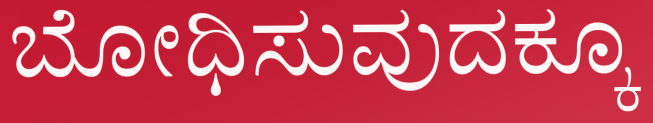
ಬೋಧಿಸುವುದಕ್ಕೂ